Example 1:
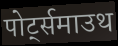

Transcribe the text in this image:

पोर्ट्समाउथ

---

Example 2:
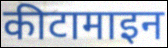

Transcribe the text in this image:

कीटामाइन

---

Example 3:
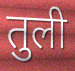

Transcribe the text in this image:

तुली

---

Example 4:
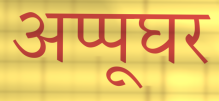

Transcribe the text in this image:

अप्पूघर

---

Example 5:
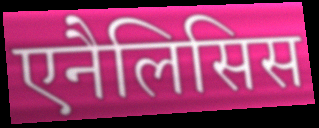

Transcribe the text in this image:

एनैलिसिस